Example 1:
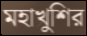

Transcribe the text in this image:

মহাখুশির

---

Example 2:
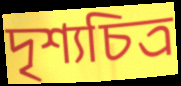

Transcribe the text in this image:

দৃশ্যচিত্র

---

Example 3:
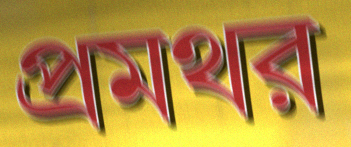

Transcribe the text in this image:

প্রমথর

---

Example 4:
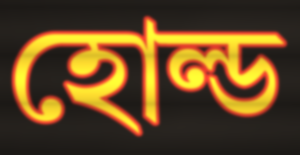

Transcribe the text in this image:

হোল্ড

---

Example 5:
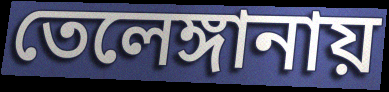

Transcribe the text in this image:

তেলেঙ্গানায়